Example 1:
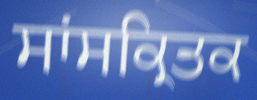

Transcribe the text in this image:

ਸਾਂਸਕ੍ਰਿਤਕ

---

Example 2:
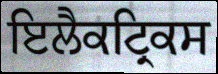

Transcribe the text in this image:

ਇਲੈਕਟ੍ਰਿਕਸ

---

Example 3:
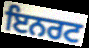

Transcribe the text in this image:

ਇਨਰਟ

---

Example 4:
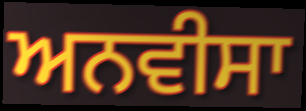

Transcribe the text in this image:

ਅਨਵੀਸਾ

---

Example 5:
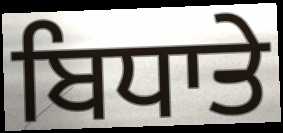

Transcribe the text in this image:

ਬਿਧਾਤੇ